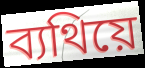
ব্যথিয়ে